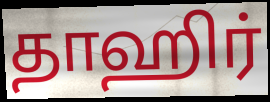
தாஹிர்